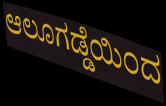
ಆಲೂಗಡ್ಡೆಯಿಂದ